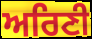
ਅਰਿਣੀ